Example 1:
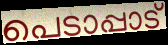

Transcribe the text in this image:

പെടാപ്പാട്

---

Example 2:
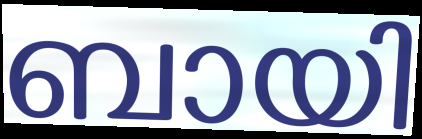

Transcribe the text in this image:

ബായി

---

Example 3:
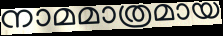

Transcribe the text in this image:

നാമമാത്രമായ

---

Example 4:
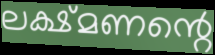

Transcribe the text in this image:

ലക്ഷ്മണന്റെ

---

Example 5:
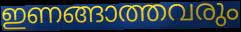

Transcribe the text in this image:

ഇണങ്ങാത്തവരും